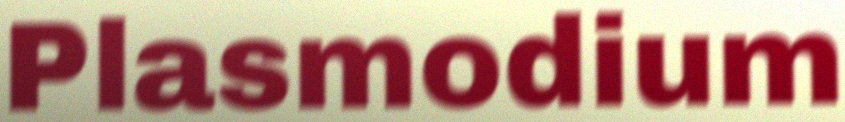
Plasmodium